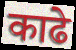
काढे